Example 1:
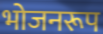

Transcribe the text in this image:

भोजनरूप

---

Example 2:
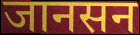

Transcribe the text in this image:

जानसन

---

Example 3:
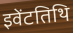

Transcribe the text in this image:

इवेंटतिथि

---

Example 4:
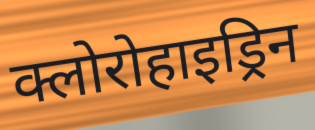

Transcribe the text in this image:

क्लोरोहाइड्रिन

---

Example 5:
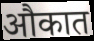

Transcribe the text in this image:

औकात